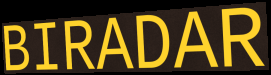
BIRADAR